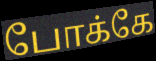
போக்கே